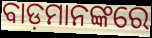
ବାଡ଼ମାନଙ୍କରେ